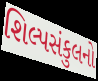
શિલ્પસંકુલનો